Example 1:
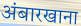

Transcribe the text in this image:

अंबारखाना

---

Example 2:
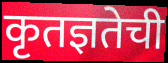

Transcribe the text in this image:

कृतज्ञतेची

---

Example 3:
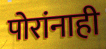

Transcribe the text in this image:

पोरांनाही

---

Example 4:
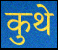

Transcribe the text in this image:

कुथे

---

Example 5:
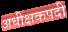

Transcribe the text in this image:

अधीक्षकपदी